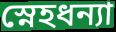
স্নেহধন্যা